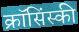
क्रॉसिंस्की